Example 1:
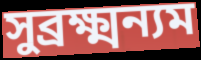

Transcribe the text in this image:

সুব্রক্ষ্মন্যম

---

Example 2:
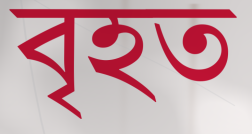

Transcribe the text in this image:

বৃহত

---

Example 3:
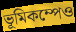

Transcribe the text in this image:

ভূমিকম্পেও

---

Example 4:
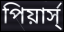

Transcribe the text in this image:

পিয়ার্স্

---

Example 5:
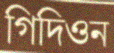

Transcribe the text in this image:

গিদিওন